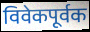
विवेकपूर्वक